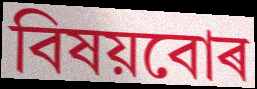
বিষয়বোৰ